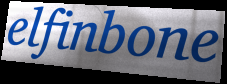
elfinbone